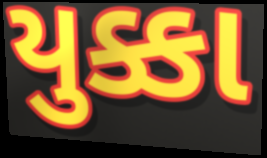
યુક્કા